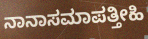
ನಾನಾಸಮಾಪತ್ತೀಹಿ